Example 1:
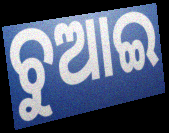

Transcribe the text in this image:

ଚୁଆଇ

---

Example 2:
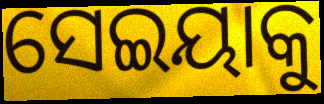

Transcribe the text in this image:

ସେଇୟାକୁ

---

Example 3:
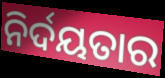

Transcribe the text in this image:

ନିର୍ଦୟତାର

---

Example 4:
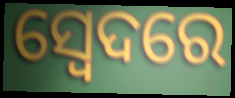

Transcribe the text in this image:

ସ୍ଵେଦରେ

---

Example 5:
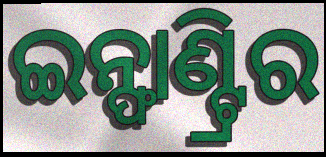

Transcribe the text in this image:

ଇନ୍ଫାଣ୍ଟ୍ରିର